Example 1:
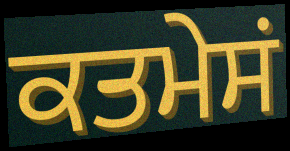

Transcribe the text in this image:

ਕਤਮੇਸਂ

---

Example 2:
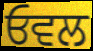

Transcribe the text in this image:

ਓਵਲ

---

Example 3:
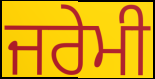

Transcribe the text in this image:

ਜਰੇਮੀ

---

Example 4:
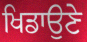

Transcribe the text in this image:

ਖਿਡਾਉਣੇ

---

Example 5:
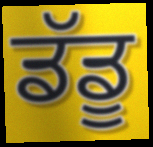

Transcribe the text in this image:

ਡੱਡੂ